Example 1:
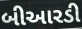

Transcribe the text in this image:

બીઆરડી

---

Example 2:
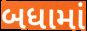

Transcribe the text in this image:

બધામાં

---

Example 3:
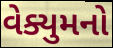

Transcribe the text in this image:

વેક્યુમનો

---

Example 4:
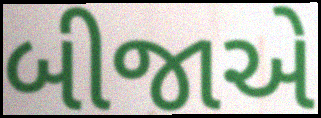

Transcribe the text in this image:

બીજાએ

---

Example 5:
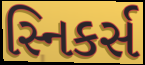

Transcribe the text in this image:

સ્નિકર્સ